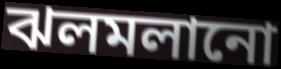
ঝলমলানো